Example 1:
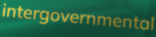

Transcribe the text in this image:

intergovernmental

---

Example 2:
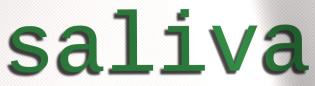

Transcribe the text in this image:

saliva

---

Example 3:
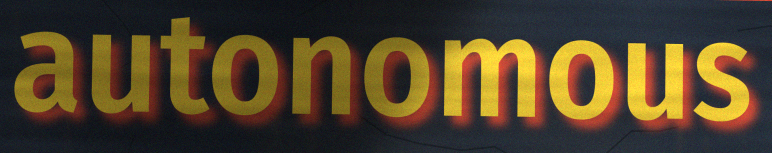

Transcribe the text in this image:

autonomous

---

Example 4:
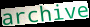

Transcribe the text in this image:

archive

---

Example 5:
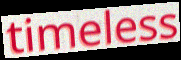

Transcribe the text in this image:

timeless